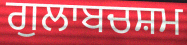
ਗੁਲਾਬਚਸ਼ਮ